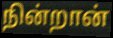
நின்றான்